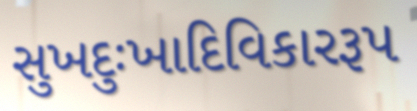
સુખદુઃખાદિવિકારરૂપ